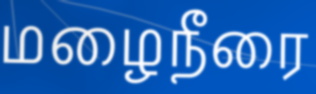
மழைநீரை